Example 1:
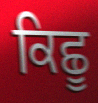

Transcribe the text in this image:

ਕਿਛੂ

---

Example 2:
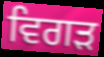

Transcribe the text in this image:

ਵਿਗੜ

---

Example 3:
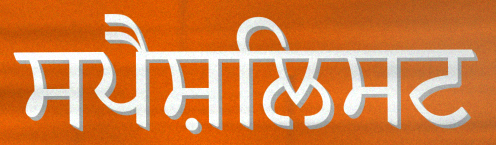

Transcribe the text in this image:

ਸਪੈਸ਼ਲਿਸਟ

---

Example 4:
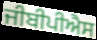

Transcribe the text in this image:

ਜੀਬੀਪੀਐਸ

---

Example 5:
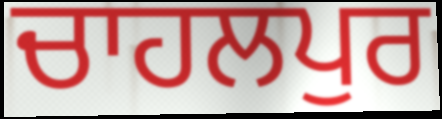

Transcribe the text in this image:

ਚਾਹਲਪੁਰ